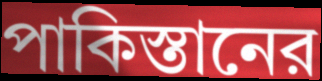
পাকিস্তানের